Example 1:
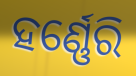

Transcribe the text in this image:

ହର୍ଣ୍ଣେରି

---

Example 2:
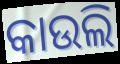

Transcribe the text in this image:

କାଉଲି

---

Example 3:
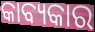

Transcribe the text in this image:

କାବ୍ୟକାର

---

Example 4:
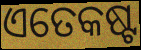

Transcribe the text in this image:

ଏତେକଷ୍ଟ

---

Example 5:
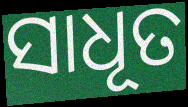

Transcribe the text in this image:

ସାଧୂତ